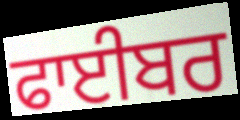
ਫਾਈਬਰ